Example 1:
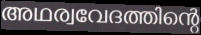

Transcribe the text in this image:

അഥര്വവേദത്തിന്റെ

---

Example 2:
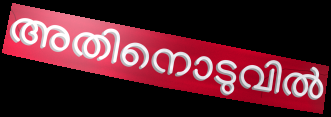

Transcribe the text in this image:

അതിനൊടുവിൽ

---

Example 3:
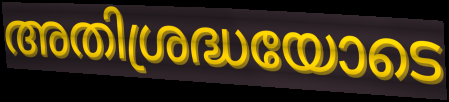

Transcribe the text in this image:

അതിശ്രദ്ധയോടെ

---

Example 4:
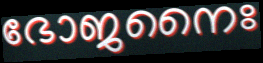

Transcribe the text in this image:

ഭോജനൈഃ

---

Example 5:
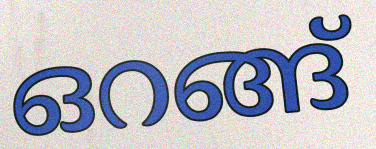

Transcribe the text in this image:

ഒറങ്ങ്